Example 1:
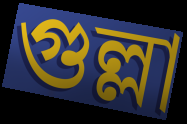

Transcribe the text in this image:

গুল্লা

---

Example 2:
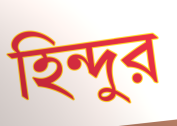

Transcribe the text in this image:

হিন্দুর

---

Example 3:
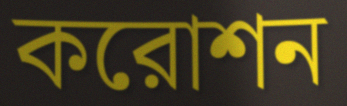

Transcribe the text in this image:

করোশন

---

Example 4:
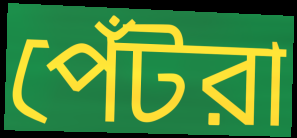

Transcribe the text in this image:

পেঁটরা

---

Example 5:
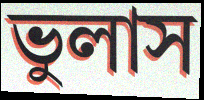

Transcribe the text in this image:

ভুলাস